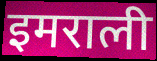
इमराली